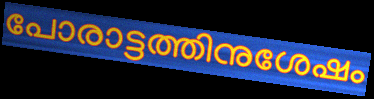
പോരാട്ടത്തിനുശേഷം